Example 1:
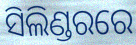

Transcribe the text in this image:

ସିଲିଣ୍ଡରରେ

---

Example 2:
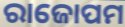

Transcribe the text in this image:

ରାଜୋପମ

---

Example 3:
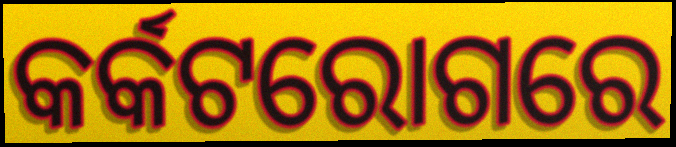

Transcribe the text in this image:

କର୍କଟରୋଗରେ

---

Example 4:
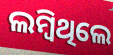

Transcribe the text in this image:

ଲମ୍ବିଥିଲେ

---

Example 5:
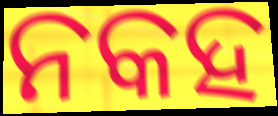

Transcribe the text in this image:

ନକହ